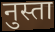
नुस्ता